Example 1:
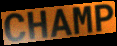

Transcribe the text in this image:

CHAMP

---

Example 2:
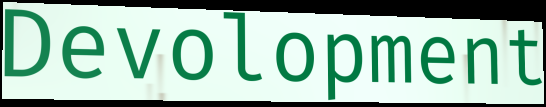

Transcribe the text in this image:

Devolopment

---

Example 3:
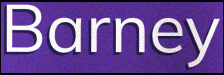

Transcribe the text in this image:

Barney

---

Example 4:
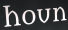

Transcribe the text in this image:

houn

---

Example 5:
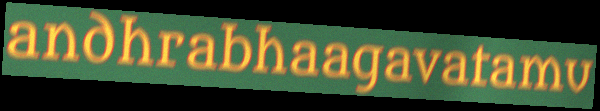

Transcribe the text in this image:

andhrabhaagavatamu